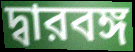
দ্বারবঙ্গ